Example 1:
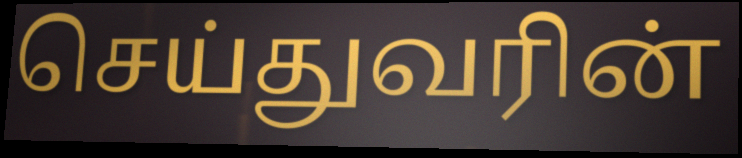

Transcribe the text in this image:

செய்துவரின்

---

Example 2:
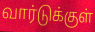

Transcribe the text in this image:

வார்டுக்குள்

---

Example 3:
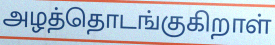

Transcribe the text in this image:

அழத்தொடங்குகிறாள்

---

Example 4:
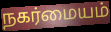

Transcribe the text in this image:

நகர்மையம்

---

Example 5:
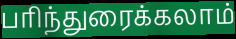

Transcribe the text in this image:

பரிந்துரைக்கலாம்